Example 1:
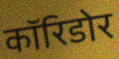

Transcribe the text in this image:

कॉरिडोर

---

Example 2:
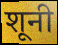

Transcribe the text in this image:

शूनी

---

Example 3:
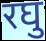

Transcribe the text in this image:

रघु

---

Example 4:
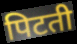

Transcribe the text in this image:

पिटती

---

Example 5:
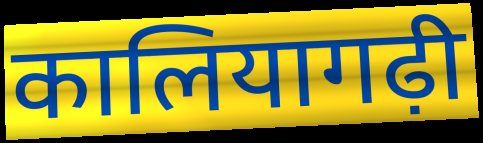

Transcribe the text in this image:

कालियागढ़ी